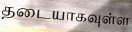
தடையாகவுள்ள